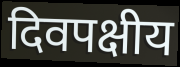
दिवपक्षीय